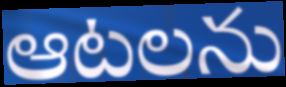
ఆటలను